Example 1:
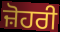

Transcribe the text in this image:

ਜ਼ੋਹਰੀ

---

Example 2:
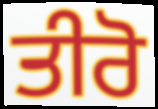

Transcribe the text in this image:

ਤੀਰੋ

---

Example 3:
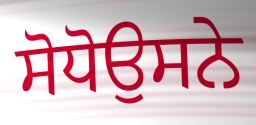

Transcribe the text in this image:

ਸੋਧੋਉਸਨੇ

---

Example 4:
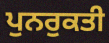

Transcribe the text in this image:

ਪੁਨਰੁਕਤੀ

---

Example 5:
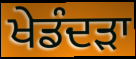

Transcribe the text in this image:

ਖੇਡੰਦੜਾ